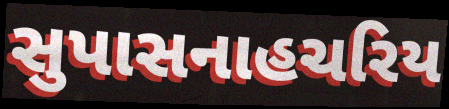
સુપાસનાહચરિય